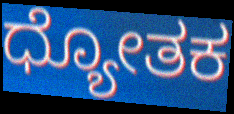
ಧ್ಯೋತಕ